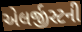
એલર્જીસ્ટની